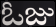
ఓజు